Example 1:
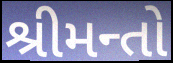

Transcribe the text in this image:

શ્રીમન્તો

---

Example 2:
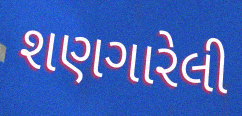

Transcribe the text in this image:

શણગારેલી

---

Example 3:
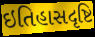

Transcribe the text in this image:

ઇતિહાસદૃષ્ટિ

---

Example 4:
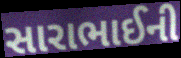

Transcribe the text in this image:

સારાભાઈની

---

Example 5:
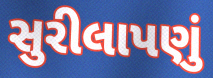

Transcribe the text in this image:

સુરીલાપણું